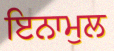
ਇਨਾਮੁਲ